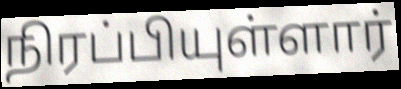
நிரப்பியுள்ளார்